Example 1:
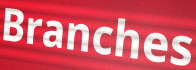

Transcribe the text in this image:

Branches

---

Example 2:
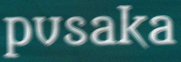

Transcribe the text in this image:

pusaka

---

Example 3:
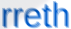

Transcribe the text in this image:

rreth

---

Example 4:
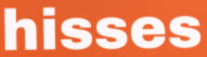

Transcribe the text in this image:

hisses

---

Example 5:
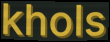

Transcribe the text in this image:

khols